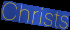
Christs